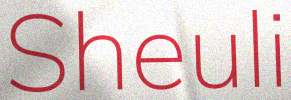
Sheuli